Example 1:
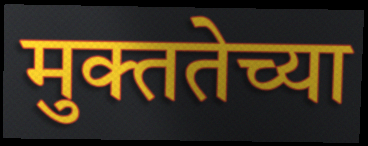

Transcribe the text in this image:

मुक्ततेच्या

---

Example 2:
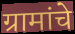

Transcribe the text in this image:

ग्रामांचे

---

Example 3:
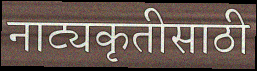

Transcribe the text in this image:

नाट्यकृतीसाठी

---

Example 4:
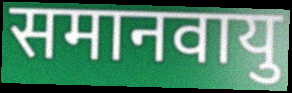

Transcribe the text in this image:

समानवायु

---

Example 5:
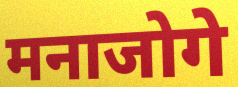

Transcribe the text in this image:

मनाजोगे